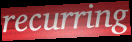
recurring